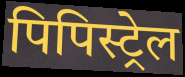
पिपिस्ट्रेल